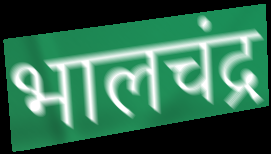
भालचंद्र